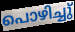
പൊഴിച്ചു്